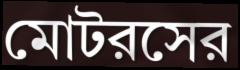
মোটরসের